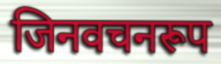
जिनवचनरूप